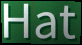
Hat